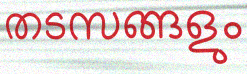
തടസങ്ങളും